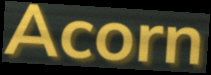
Acorn